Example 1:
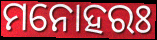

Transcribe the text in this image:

ମନୋହରଃ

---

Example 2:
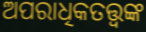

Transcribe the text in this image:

ଅପରାଧିକତତ୍ତ୍ୱଙ୍କ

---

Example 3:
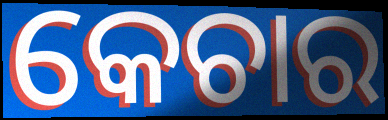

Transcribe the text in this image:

କେଚାର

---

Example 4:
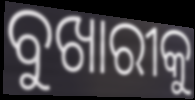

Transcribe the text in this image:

ବୁଖାରୀକୁ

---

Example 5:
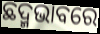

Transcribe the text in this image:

ଛଦ୍ମଭାବରେ